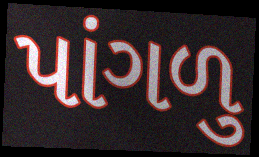
પાંગળુ